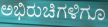
ಅಭಿರುಚಿಗಳಿಗೂ